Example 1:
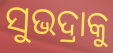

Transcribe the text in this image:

ସୁଭଦ୍ରାକୁ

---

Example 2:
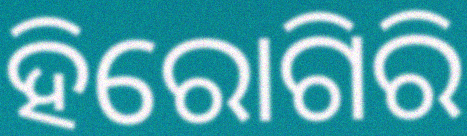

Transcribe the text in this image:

ହିରୋଗିରି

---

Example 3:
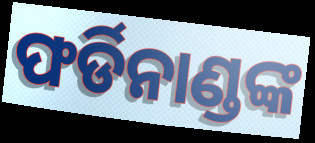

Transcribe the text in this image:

ଫର୍ଡିନାଣ୍ଡଙ୍କ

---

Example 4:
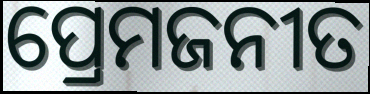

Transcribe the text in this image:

ପ୍ରେମଜନୀତ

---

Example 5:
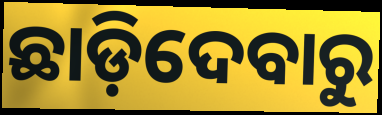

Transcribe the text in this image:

ଛାଡ଼ିଦେବାରୁ